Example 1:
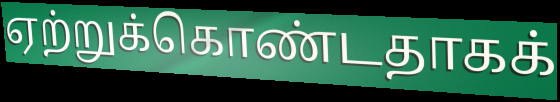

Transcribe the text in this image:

ஏற்றுக்கொண்டதாகக்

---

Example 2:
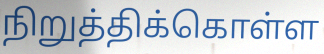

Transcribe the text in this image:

நிறுத்திக்கொள்ள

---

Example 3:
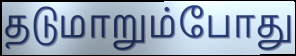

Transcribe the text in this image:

தடுமாறும்போது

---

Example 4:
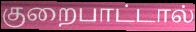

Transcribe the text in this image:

குறைபாட்டால்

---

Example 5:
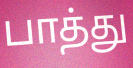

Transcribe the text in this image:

பாத்து